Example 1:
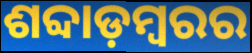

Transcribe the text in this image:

ଶବ୍ଦାଡ଼ମ୍ବରର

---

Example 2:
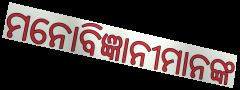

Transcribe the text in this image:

ମନୋବିଜ୍ଞାନୀମାନଙ୍କ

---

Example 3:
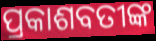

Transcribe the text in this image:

ପ୍ରକାଶବତୀଙ୍କ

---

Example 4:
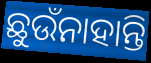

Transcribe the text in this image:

ଛୁଉଁନାହାନ୍ତି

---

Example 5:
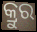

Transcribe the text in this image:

କ୍ରୁର